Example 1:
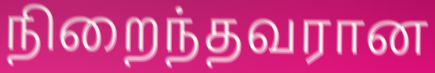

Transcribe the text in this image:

நிறைந்தவரான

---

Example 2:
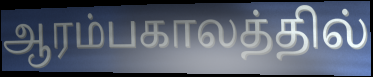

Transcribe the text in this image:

ஆரம்பகாலத்தில்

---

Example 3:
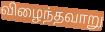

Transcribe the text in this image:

விழைந்தவாறு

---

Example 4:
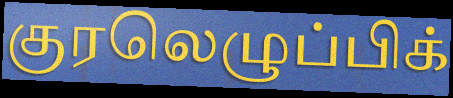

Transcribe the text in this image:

குரலெழுப்பிக்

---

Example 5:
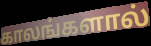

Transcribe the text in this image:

காலங்களால்